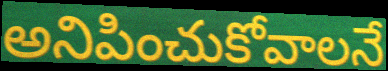
అనిపించుకోవాలనే